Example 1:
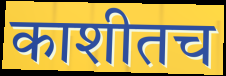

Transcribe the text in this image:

काशीतच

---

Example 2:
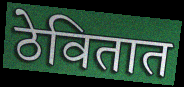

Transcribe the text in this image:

ठेवितात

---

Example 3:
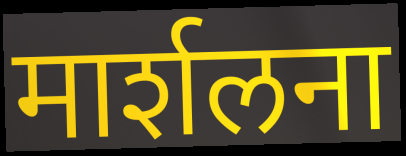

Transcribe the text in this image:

मार्शलना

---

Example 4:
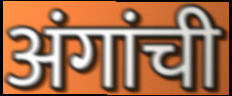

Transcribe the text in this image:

अंगांची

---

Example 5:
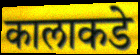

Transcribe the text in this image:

कालाकडे